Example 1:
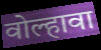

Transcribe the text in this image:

वोल्हावा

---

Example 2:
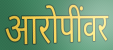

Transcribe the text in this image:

आरोपींवर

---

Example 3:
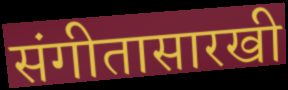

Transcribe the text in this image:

संगीतासारखी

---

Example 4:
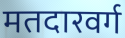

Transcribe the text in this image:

मतदारवर्ग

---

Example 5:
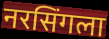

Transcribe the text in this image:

नरसिंगला